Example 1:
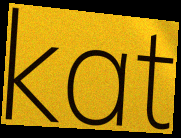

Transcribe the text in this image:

kat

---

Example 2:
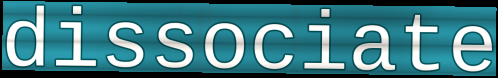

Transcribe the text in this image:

dissociate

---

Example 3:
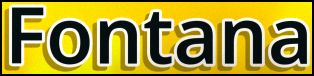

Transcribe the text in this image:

Fontana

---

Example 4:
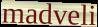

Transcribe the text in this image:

madveli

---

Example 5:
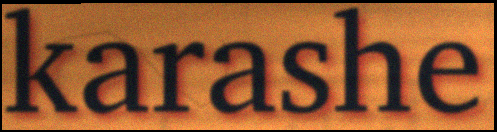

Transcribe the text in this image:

karashe